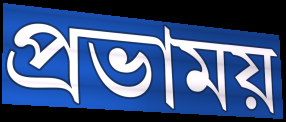
প্রভাময়